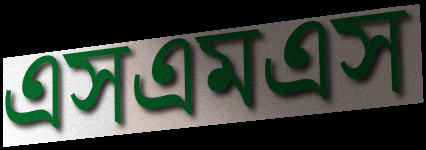
এসএমএস